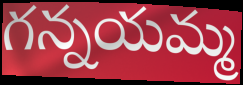
గన్నయమ్మ